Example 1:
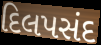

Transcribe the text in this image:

દિલપસંદ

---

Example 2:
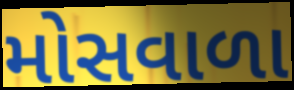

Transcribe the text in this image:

મોસવાળા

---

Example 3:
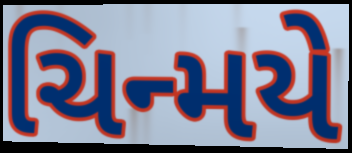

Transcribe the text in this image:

ચિન્મયે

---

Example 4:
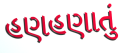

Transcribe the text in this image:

હણહણાતું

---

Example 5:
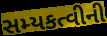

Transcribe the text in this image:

સમ્યકત્વીની